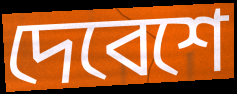
দেবেশে